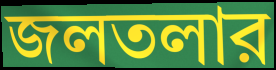
জলতলার